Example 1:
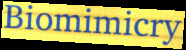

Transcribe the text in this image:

Biomimicry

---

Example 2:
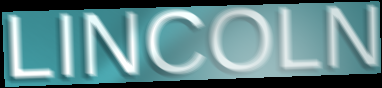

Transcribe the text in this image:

LINCOLN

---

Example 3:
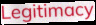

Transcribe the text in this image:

Legitimacy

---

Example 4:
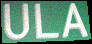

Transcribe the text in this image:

ULA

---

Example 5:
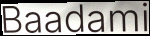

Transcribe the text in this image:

Baadami